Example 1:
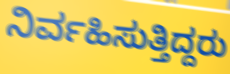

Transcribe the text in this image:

ನಿರ್ವಹಿಸುತ್ತಿದ್ದರು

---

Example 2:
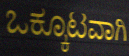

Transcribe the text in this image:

ಒಕ್ಕೂಟವಾಗಿ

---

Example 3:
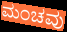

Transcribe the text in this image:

ಮಂಚವು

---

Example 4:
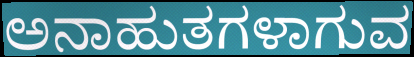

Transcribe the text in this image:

ಅನಾಹುತಗಳಾಗುವ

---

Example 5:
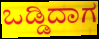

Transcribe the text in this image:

ಒಡ್ಡಿದಾಗ